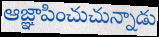
ఆజ్ఞాపించుచున్నాడు